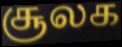
சூலக